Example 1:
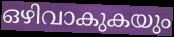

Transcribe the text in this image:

ഒഴിവാകുകയും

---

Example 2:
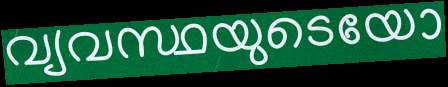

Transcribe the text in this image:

വ്യവസ്ഥയുടെയോ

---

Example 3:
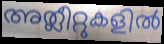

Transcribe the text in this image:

അത്ലീറ്റുകളിൽ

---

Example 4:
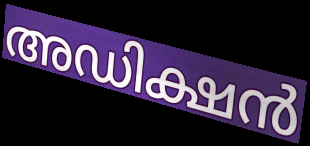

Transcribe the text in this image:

അഡിക്ഷൻ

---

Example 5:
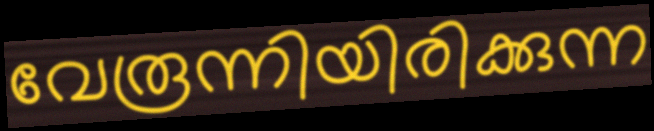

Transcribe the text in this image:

വേരൂന്നിയിരിക്കുന്ന